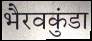
भैरवकुंडा